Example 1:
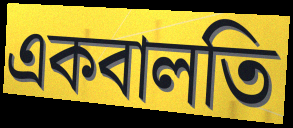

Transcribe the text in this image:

একবালতি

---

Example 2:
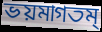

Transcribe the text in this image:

ভয়মাগতম্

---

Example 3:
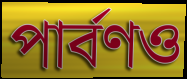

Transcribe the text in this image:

পার্বণও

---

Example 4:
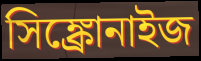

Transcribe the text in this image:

সিঙ্ক্রোনাইজ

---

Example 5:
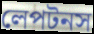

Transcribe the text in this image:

লেপটনস